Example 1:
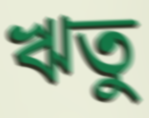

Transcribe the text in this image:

ঋতু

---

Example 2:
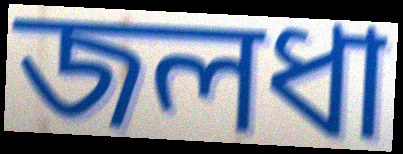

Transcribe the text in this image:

জলধা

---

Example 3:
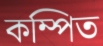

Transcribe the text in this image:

কম্পিত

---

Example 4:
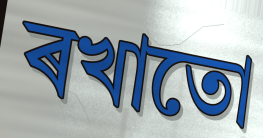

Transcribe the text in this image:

ৰখাতো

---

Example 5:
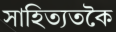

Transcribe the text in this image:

সাহিত্যতকৈ